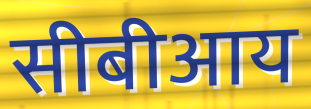
सीबीआय